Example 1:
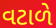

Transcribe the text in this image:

વટાળે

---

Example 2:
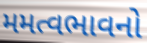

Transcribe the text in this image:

મમત્વભાવનો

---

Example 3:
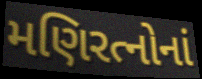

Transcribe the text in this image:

મણિરત્નોનાં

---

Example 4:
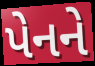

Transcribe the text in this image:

પેનને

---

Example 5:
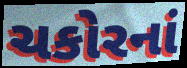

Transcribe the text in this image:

ચકોરનાં